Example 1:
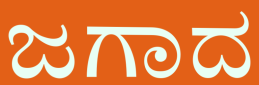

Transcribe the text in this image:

ಜಗಾದ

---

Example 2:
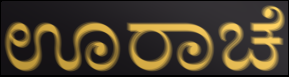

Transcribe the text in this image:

ಊರಾಚೆ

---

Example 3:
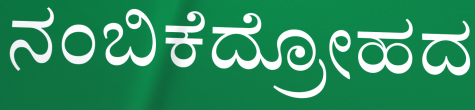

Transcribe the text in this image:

ನಂಬಿಕೆದ್ರೋಹದ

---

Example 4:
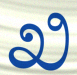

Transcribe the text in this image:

ಖಿ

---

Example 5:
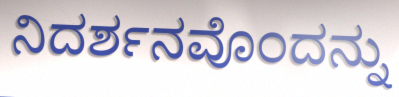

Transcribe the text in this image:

ನಿದರ್ಶನವೊಂದನ್ನು